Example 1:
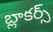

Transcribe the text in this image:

బ్లాకర్స్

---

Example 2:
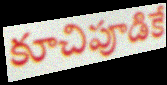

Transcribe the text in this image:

కూచిపూడికే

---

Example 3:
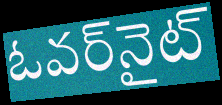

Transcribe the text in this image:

ఓవర్‌నైట్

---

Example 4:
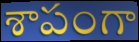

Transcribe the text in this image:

శాపంగా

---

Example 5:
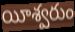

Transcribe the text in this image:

యీశ్వరుం